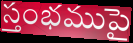
స్తంభముపై